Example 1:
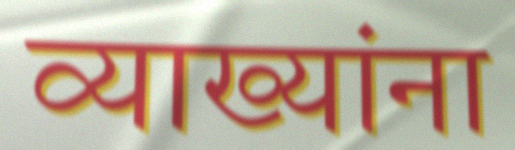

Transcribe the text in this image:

व्याख्यांना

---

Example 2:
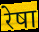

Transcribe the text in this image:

रेषा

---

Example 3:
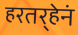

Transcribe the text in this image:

हरतर्‍हेनं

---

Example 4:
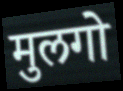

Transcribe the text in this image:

मुलगो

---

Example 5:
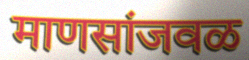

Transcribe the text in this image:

माणसांजवळ